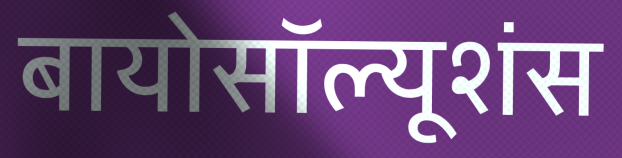
बायोसॉल्यूशंस